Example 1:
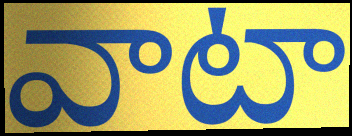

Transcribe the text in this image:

వాటా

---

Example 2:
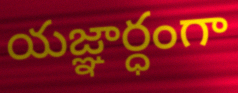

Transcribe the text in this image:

యజ్ఞార్ధంగా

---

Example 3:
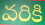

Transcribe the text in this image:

వరికి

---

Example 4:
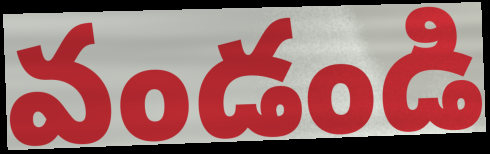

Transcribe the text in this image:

వండండి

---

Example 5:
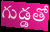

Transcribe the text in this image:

గుడ్డతో